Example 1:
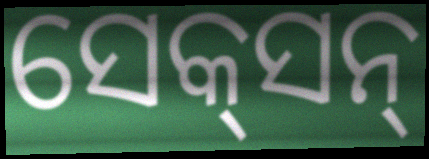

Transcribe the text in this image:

ସେକ୍‌ସନ୍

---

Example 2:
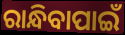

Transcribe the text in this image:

ରାନ୍ଧିବାପାଇଁ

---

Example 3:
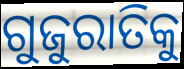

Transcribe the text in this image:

ଗୁଜୁରାତିକୁ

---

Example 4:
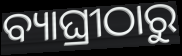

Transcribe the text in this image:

ବ୍ୟାଘ୍ରୀଠାରୁ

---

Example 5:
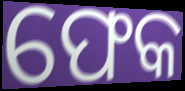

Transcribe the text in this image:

ଫେକ